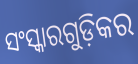
ସଂସ୍କାରଗୁଡ଼ିକର